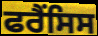
ਫਰੈਂਸਿਸ